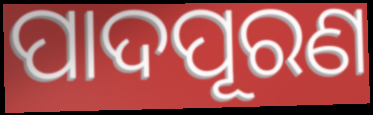
ପାଦପୂରଣ